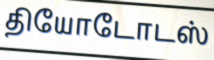
தியோடோடஸ்